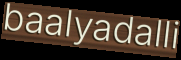
baalyadalli